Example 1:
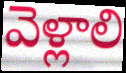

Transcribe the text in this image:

వెళ్లాలి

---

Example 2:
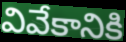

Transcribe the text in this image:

వివేకానికి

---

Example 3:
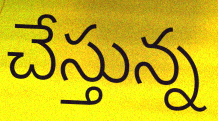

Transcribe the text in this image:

చేస్తున్న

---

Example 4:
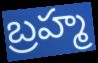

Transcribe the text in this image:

బ్రహ్మ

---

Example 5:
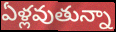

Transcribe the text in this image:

ఏళ్లవుతున్నా